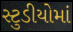
સ્ટુડીયોમાં